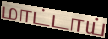
மாட்டாய்